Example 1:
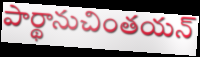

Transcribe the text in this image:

పార్థానుచింతయన్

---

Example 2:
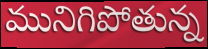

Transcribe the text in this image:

మునిగిపోతున్న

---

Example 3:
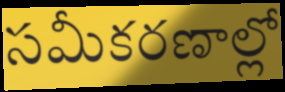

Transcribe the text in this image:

సమీకరణాల్లో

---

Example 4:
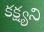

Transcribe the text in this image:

కక్ష్యని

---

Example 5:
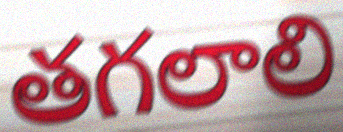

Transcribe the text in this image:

తగలాలి